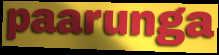
paarunga